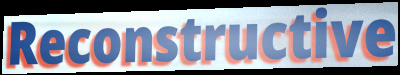
Reconstructive